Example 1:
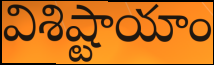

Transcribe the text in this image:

విశిష్టాయాం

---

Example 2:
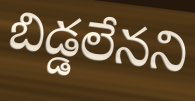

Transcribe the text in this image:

బిడ్డలేనని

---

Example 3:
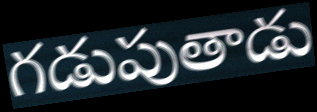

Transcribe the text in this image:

గడుపుతాడు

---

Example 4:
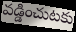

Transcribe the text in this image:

వడ్డించుటకు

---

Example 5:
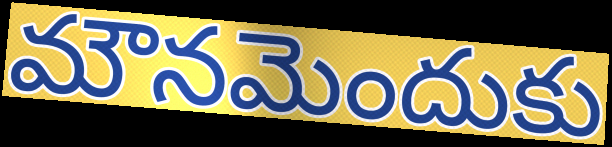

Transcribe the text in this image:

మౌనమెందుకు